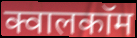
क्‍वालकॉम